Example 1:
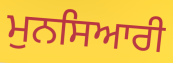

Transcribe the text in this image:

ਮੁਨਸਿਆਰੀ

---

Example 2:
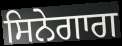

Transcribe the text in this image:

ਸਿਨੇਗਾਗ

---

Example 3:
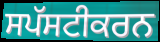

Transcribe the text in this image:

ਸਪੱਸਟੀਕਰਨ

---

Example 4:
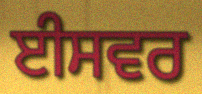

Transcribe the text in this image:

ਈਸਵਰ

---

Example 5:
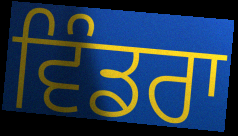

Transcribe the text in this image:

ਵਿੰਡਰਾ